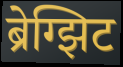
ब्रेग्झिट